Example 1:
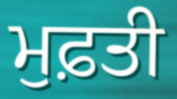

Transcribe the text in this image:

ਮੁਫ਼ਤੀ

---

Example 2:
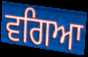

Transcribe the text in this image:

ਵਗਿਆ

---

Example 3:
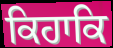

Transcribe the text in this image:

ਕਿਹਾਕਿ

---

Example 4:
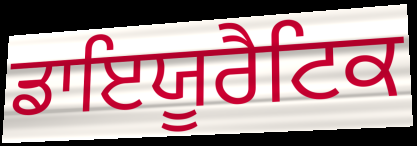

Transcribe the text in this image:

ਡਾਇਯੂਰੈਟਿਕ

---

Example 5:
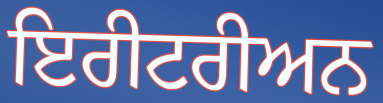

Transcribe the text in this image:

ਇਰੀਟਰੀਅਨ